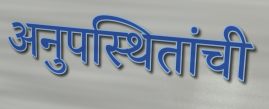
अनुपस्थितांची